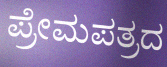
ಪ್ರೇಮಪತ್ರದ